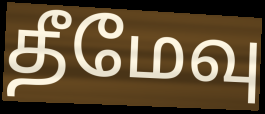
தீமேவு